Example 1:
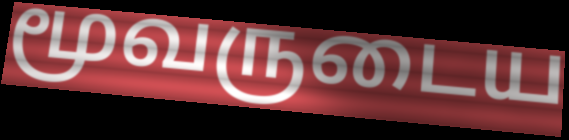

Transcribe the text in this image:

மூவருடைய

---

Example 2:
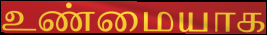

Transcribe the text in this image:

உண்மையாக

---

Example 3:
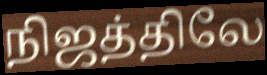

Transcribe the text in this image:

நிஜத்திலே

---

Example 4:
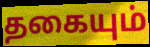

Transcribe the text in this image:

தகையும்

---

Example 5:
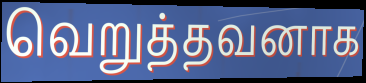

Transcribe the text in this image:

வெறுத்தவனாக